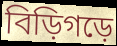
বিড়িগড়ে